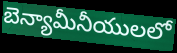
బెన్యామీనీయులలో